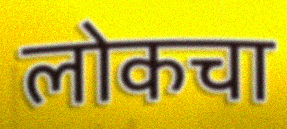
लोकचा